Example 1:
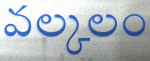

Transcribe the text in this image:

వల్కలం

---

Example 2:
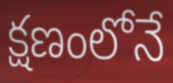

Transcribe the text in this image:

క్షణంలోనే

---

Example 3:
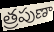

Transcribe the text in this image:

త్రపుణా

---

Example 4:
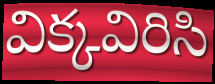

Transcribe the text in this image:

విక్కవిరిసి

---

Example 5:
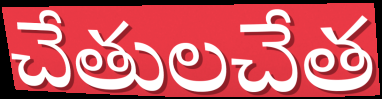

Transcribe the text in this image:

చేతులచేత